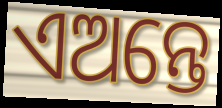
ଏଅନ୍ତେ